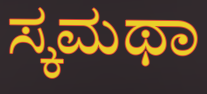
ಸ್ಕಮಥಾ